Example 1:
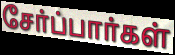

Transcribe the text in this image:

சேர்ப்பார்கள்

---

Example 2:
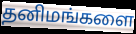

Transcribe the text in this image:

தனிமங்களை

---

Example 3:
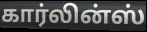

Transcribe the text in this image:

கார்லின்ஸ்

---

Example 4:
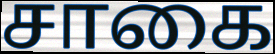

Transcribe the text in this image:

சாகை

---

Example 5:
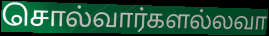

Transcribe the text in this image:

சொல்வார்களல்லவா